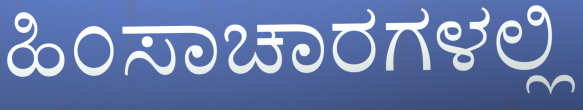
ಹಿಂಸಾಚಾರಗಳಲ್ಲಿ